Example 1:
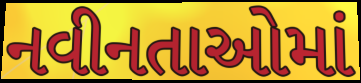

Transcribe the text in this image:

નવીનતાઓમાં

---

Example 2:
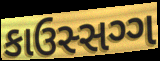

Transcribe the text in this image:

કાઉસ્સગ્ગ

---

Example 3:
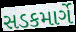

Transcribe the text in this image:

સડકમાર્ગે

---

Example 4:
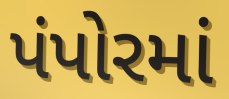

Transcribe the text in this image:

પંપોરમાં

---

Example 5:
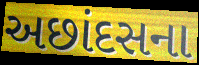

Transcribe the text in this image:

અછાંદસના